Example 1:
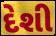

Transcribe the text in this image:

દેશી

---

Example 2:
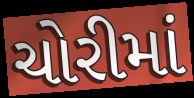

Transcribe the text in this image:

ચોરીમાં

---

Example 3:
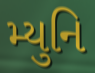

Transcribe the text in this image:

મ્યુનિ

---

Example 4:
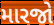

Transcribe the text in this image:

મારજો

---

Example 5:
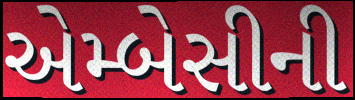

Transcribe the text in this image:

એમ્બેસીની